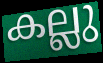
കല്ലു